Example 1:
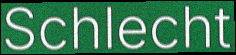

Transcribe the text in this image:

Schlecht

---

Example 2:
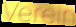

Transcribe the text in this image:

Verein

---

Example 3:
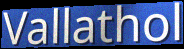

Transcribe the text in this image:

Vallathol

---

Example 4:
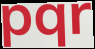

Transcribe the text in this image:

pqr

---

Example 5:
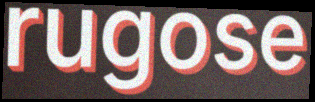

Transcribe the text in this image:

rugose